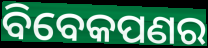
ବିବେକପଣର